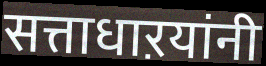
सत्ताधाऱयांनी